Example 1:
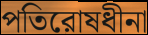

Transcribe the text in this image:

পতিরোষধীনা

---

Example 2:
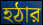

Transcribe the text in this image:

হঠার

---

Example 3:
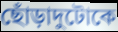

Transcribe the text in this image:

ছোঁড়াদুটোকে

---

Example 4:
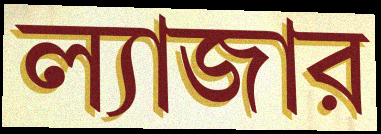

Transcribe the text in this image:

ল্যাজার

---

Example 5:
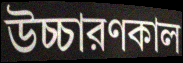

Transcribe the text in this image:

উচ্চারণকাল